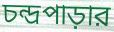
চন্দ্রপাড়ার